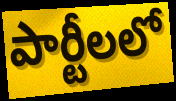
పార్టీలలో